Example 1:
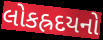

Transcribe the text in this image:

લોકહ્રદયનો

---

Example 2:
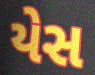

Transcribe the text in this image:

યેસ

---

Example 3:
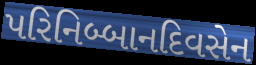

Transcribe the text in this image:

પરિનિબ્બાનદિવસેન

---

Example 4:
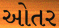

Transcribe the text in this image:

ઓતર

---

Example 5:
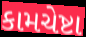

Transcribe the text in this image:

કામચેષ્ટા